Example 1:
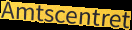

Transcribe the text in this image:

Amtscentret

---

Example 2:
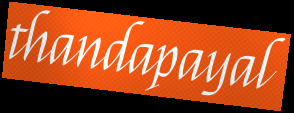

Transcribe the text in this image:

thandapayal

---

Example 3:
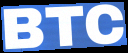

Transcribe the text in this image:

BTC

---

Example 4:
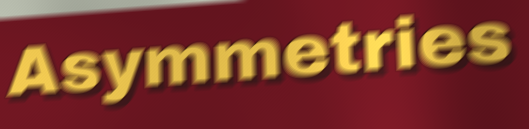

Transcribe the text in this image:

Asymmetries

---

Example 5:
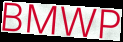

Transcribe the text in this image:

BMWP